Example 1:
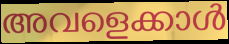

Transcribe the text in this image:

അവളെക്കാൾ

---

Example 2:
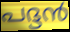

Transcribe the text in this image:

പദ്ദൻ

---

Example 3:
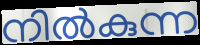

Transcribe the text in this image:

നിൽകുന്ന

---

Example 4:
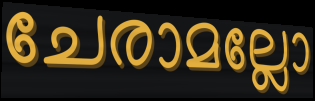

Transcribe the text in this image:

ചേരാമല്ലോ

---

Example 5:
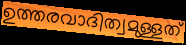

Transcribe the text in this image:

ഉത്തരവാദിത്വമുള്ളത്